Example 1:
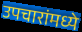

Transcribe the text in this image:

उपचारांमध्ये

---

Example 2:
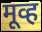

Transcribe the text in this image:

मूव्ह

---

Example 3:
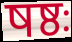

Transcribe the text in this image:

षष्ठः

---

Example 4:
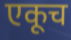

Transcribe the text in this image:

एकूच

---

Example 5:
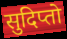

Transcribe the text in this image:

सुदिप्तो